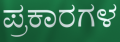
ಪ್ರಕಾರಗಳ